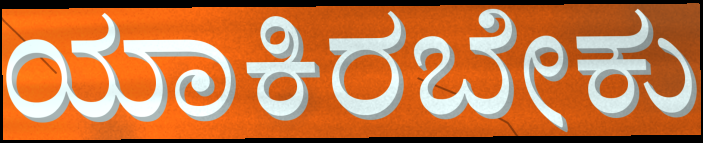
ಯಾಕಿರಬೇಕು